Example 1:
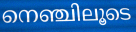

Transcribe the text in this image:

നെഞ്ചിലൂടെ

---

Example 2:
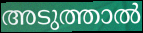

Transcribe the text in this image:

അടുത്താൽ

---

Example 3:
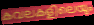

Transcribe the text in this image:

കവലകളിലെയും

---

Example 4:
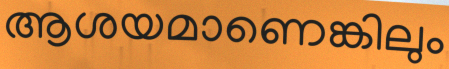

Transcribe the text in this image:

ആശയമാണെങ്കിലും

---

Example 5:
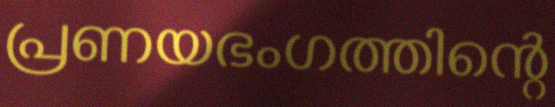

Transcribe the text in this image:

പ്രണയഭംഗത്തിന്റെ